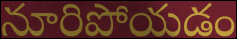
నూరిపోయడం